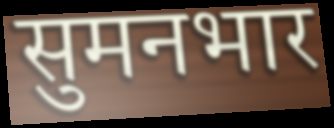
सुमनभार